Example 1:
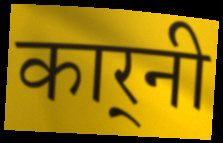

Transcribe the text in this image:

कार्नी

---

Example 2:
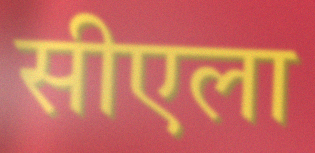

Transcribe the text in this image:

सीएला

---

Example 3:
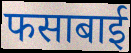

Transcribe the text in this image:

फसाबाई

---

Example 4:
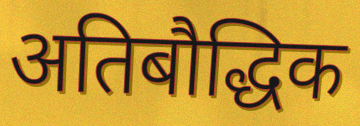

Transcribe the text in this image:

अतिबौद्धिक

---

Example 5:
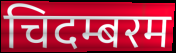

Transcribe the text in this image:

चिदम्बरम